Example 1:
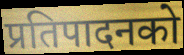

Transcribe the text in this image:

प्रतिपादनको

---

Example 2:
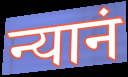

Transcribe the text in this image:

न्यानं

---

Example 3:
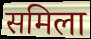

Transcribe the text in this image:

समिला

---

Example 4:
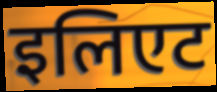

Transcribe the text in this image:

इलिएट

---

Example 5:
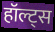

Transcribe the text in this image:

हॉल्ट्स